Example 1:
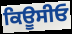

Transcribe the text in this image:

ਕਿਊਸੀਓ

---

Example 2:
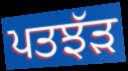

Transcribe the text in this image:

ਪਤਝੱੜ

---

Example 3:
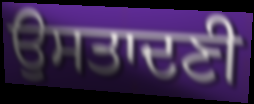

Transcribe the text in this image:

ਉਸਤਾਦਣੀ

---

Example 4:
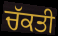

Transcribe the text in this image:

ਚੱਕਤੀ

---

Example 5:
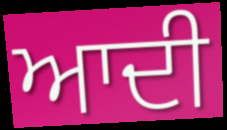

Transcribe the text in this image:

ਆਦੀ